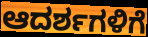
ಆದರ್ಶಗಳಿಗೆ